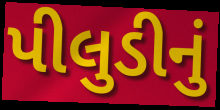
પીલુડીનું